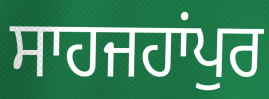
ਸਾਹਜਹਾਂਪੁਰ